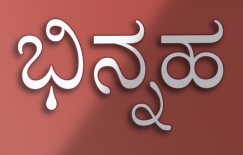
ಭಿನ್ನಹ